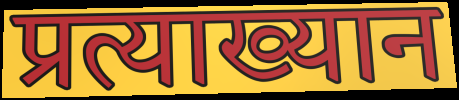
प्रत्याख्यान